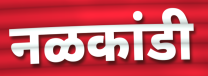
नळकांडी